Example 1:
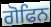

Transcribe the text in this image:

ਗੋਫਿਨ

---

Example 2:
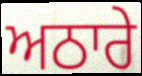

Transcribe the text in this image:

ਅਠਾਰੇ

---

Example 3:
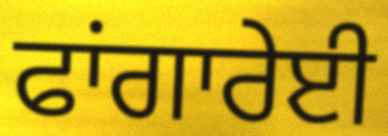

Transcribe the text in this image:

ਫਾਂਗਾਰੇਈ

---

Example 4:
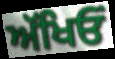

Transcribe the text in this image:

ਅੱਖਿਓਂ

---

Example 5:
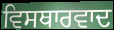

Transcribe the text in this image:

ਵਿਸਥਾਰਵਾਦ